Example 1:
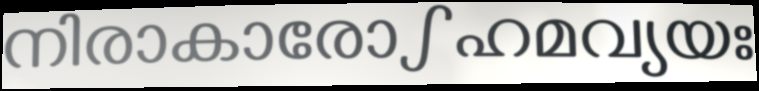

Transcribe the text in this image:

നിരാകാരോഽഹമവ്യയഃ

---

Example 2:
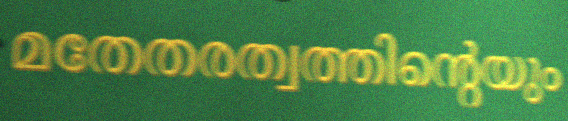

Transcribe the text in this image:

മതേതരത്വത്തിന്റെയും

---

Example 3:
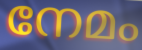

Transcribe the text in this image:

നേമം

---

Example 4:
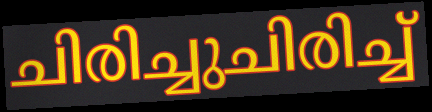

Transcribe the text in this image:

ചിരിച്ചുചിരിച്ച്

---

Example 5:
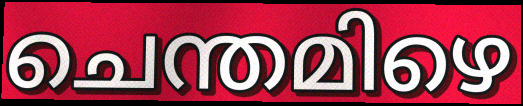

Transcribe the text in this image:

ചെന്തമിഴെ